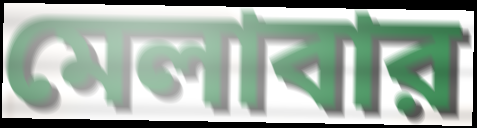
মেলাবার